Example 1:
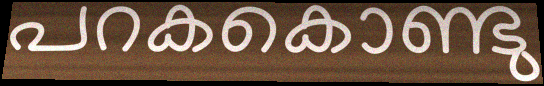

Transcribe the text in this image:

പറകകൊണ്ടു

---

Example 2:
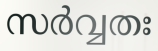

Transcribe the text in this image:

സർവ്വതഃ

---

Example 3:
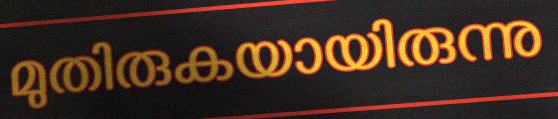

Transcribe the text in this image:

മുതിരുകയായിരുന്നു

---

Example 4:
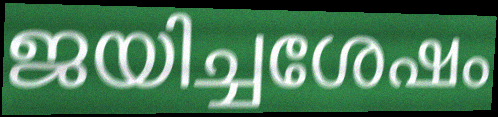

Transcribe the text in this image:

ജയിച്ചശേഷം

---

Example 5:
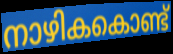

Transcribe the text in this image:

നാഴികകൊണ്ട്